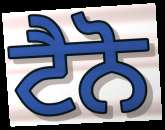
ਟੈਨੋ